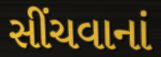
સીંચવાનાં